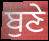
ਬੁਣੇ